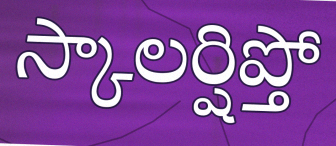
స్కాలర్షిప్తో